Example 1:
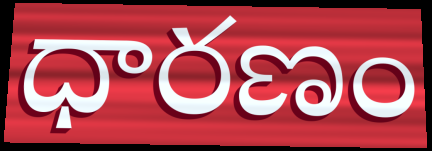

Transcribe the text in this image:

ధారణం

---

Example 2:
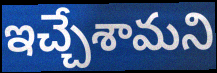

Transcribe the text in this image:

ఇచ్చేశామని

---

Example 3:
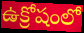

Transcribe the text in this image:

ఉక్రోషంలో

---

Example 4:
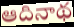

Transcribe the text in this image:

ఆదినాథ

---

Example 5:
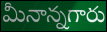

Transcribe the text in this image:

మీనాన్నగారు